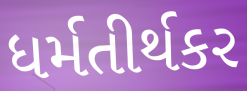
ધર્મતીર્થકર